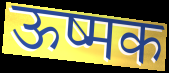
ऊष्मक